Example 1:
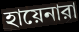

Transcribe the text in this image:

হায়েনারা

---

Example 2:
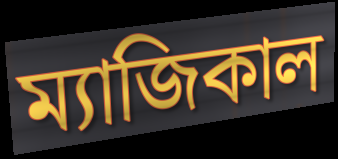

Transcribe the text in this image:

ম্যাজিকাল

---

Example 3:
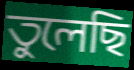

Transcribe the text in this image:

তুলেছি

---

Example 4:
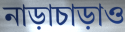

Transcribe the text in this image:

নাড়াচাড়াও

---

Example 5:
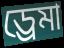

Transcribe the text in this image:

ড্রেমা